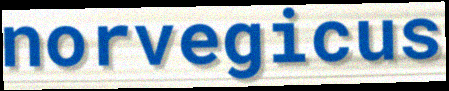
norvegicus